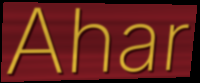
Ahar